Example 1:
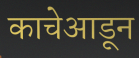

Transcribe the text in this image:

काचेआडून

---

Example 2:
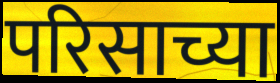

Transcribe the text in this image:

परिसाच्या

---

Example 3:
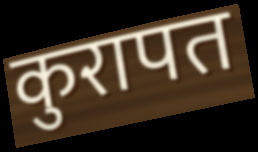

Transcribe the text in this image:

कुरापत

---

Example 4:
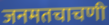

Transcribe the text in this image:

जनमतचाचणी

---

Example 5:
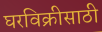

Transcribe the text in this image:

घरविक्रीसाठी